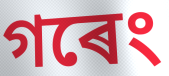
গৰেং